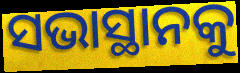
ସଭାସ୍ଥାନକୁ